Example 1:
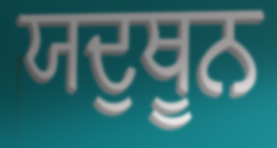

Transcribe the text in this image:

ਯਦੁਥੂਨ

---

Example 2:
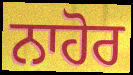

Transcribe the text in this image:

ਨਾਹੋਰ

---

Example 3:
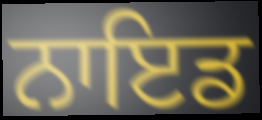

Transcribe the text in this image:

ਨਾਇਡ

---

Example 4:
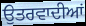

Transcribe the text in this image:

ਉਤਰਵਾਦੀਆਂ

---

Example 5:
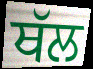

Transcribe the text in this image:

ਥੱਲ